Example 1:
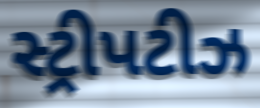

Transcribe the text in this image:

સ્ટ્રીપટીઝ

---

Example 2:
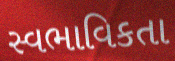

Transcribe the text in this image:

સ્વભાવિકતા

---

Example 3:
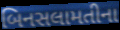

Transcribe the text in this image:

બિનસલામતીના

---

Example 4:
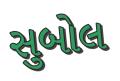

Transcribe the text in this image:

સુબોલ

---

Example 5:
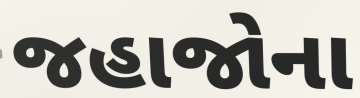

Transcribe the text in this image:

જહાજોના